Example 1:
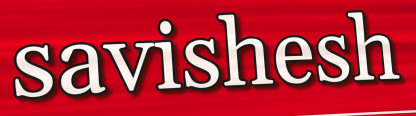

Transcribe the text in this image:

savishesh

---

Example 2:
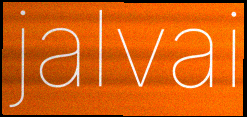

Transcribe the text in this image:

jalvai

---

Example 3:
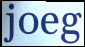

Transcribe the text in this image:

joeg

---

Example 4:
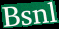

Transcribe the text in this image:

Bsnl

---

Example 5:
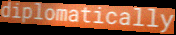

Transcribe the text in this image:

diplomatically